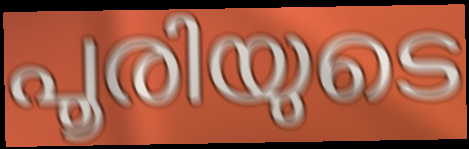
പൂരിയുടെ